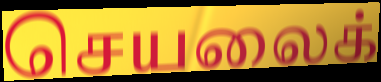
செயலைக்